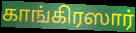
காங்கிரஸார்